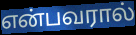
என்பவரால்